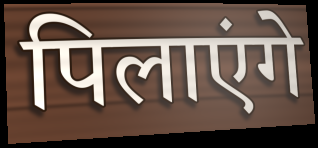
पिलाएंगे